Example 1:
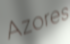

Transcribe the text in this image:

Azores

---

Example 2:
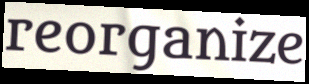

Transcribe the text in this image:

reorganize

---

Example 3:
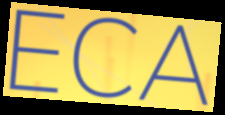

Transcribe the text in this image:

ECA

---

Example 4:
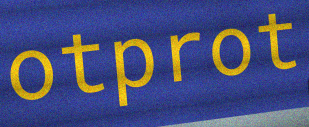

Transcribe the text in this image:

otprot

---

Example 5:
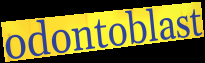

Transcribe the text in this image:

odontoblast